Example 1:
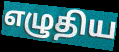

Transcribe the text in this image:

எழுதிய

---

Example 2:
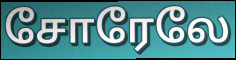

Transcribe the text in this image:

சோரேலே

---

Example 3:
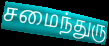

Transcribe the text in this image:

சமைந்துரு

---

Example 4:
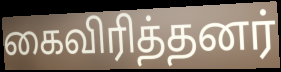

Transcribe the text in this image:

கைவிரித்தனர்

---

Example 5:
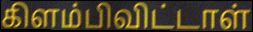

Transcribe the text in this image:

கிளம்பிவிட்டாள்